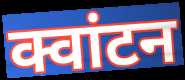
क्वांटन